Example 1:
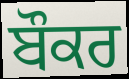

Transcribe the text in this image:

ਬੌਕਰ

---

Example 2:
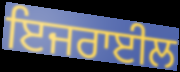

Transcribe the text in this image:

ਇਜਰਾਈਲ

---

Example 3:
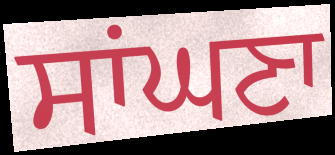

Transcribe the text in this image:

ਸਾਂਘਣਾ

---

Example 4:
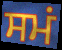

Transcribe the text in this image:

ਸਮਂ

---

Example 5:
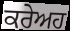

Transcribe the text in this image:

ਕਰੇਅਹ